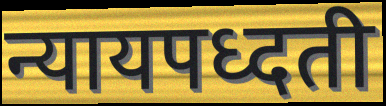
न्यायपध्दती